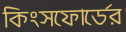
কিংসফোর্ডের